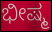
ಭೀಷ್ಮ